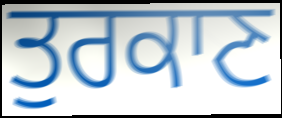
ਤੁਰਕਾਣ